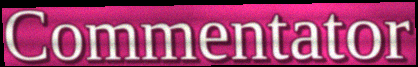
Commentator